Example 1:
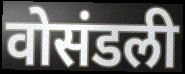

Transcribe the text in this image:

वोसंडली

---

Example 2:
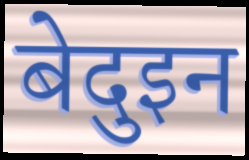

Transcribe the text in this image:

बेदुइन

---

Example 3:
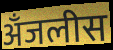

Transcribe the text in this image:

अँजलीस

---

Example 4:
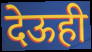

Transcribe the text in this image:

देऊही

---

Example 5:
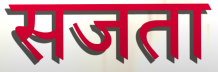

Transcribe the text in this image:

सजता